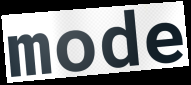
mode